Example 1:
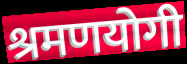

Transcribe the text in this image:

श्रमणयोगी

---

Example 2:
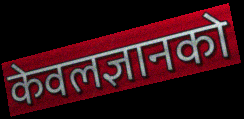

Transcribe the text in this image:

केवलज्ञानको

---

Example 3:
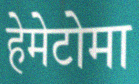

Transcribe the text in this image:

हेमेटोमा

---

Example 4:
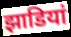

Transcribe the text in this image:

झाडियां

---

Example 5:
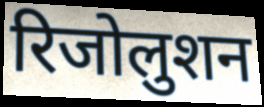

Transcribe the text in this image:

रिजोलुशन